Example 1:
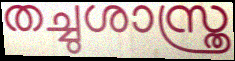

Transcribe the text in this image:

തച്ചുശാസ്ത്ര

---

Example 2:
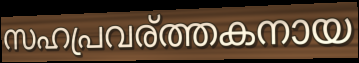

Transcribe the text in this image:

സഹപ്രവര്ത്തകനായ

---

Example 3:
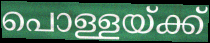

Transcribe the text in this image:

പൊള്ളയ്ക്ക്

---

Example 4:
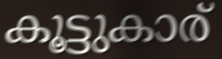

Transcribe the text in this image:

കൂട്ടുകാര്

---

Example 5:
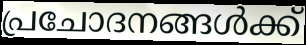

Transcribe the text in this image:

പ്രചോദനങ്ങൾക്ക്